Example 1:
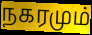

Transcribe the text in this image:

நகரமும்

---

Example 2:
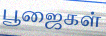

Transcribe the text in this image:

பூஜைகள்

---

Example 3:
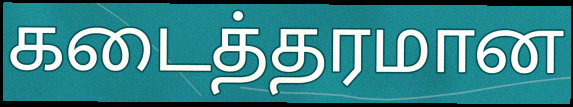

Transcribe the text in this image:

கடைத்தரமான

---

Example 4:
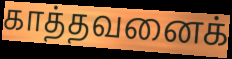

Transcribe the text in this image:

காத்தவனைக்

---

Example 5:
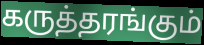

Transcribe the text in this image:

கருத்தரங்கும்